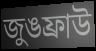
জুঙফ্রাউ